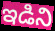
ఇడిని